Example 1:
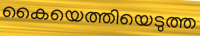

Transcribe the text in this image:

കൈയെത്തിയെടുത്ത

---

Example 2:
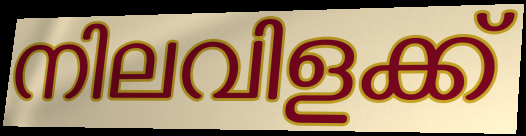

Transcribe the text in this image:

നിലവിളക്ക്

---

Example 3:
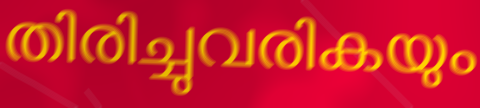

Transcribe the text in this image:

തിരിച്ചുവരികയും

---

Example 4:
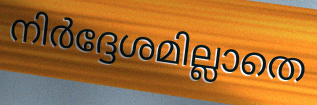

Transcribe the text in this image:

നിർദ്ദേശമില്ലാതെ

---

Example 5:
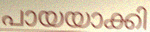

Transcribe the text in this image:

പായയാക്കി